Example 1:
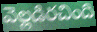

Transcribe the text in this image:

వెల్లడిరచింది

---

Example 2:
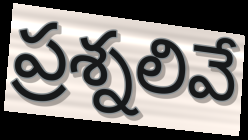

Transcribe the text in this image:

ప్రశ్నలివే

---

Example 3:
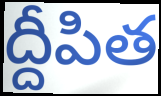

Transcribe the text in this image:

ద్దీపిత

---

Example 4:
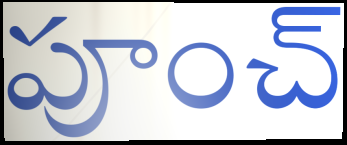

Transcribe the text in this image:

పూంచ్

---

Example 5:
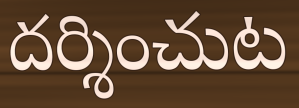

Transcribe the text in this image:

దర్శించుట